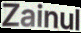
Zainul